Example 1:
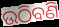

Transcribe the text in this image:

ଉଠିବଣି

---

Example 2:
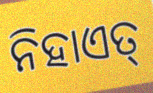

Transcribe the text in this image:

ନିହାଏତ୍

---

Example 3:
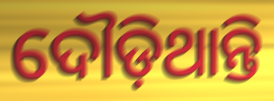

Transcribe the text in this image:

ଦୌଡ଼ିଥାନ୍ତି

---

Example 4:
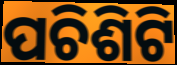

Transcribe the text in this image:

ପଚିଶିଟି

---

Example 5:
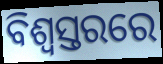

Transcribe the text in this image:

ବିଶ୍ୱସ୍ତରରେ